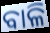
ବାଳି